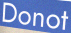
Donot